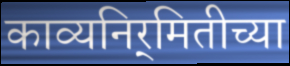
काव्यनिर्मितीच्या